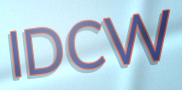
IDCW